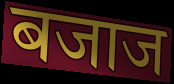
बजाज